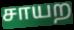
சாயற